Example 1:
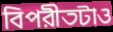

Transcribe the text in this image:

বিপরীতটাও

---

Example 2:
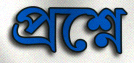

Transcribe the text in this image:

প্রশ্নে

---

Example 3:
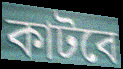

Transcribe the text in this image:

কাটবে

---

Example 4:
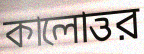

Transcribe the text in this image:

কালোত্তর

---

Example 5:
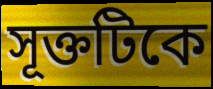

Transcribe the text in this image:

সূক্তটিকে